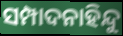
ସମ୍ପାଦନାହିନ୍ଦୁ